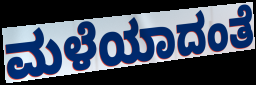
ಮಳೆಯಾದಂತೆ